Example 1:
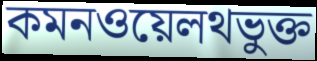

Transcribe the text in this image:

কমনওয়েলথভুক্ত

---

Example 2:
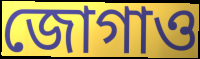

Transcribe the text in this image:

জোগাও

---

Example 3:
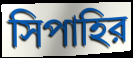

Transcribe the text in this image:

সিপাহির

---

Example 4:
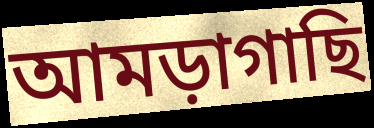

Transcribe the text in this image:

আমড়াগাছি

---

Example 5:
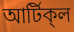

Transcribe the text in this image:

আর্টিক্‌ল